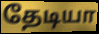
தேடியா